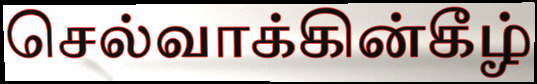
செல்வாக்கின்கீழ்